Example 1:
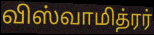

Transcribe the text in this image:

விஸ்வாமித்ரர்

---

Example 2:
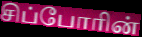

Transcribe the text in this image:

சிப்போரின்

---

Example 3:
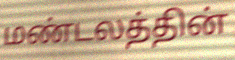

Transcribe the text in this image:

மண்டலத்தின்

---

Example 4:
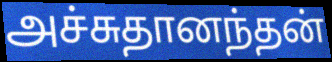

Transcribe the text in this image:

அச்சுதானந்தன்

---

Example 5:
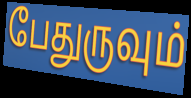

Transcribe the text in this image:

பேதுருவும்